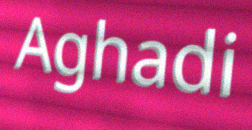
Aghadi